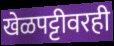
खेळपट्टीवरही